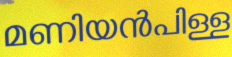
മണിയൻപിള്ള